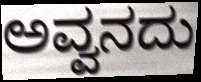
ಅವ್ವನದು